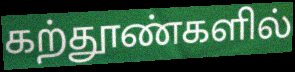
கற்தூண்களில்